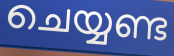
ചെയ്യണ്ട